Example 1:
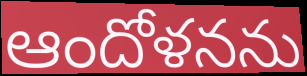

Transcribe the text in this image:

ఆందోళనను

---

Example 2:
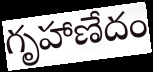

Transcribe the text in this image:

గృహాణేదం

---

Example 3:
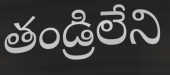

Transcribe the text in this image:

తండ్రిలేని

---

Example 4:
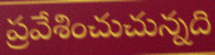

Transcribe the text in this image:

ప్రవేశించుచున్నది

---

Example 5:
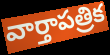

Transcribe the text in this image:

వార్తాపత్రిక